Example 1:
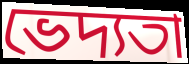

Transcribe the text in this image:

ভেদ্যতা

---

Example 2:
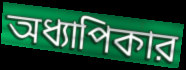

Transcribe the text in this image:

অধ্যাপিকার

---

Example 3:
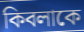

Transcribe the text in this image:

কিবলাকে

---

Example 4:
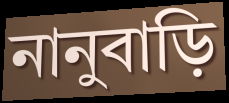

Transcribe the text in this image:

নানুবাড়ি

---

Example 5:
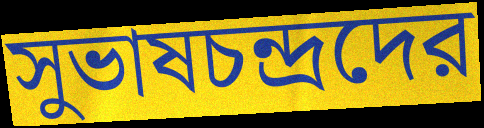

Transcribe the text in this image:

সুভাষচন্দ্রদের